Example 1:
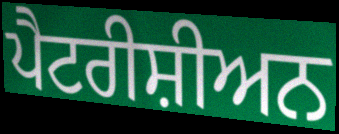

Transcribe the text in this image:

ਪੈਟਰੀਸ਼ੀਅਨ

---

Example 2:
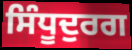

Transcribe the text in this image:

ਸਿੰਧੂਦੁਰਗ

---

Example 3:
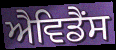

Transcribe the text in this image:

ਐਵਿਡੈਂਸ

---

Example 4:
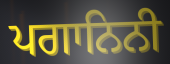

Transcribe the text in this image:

ਪਗਾਨਿਨੀ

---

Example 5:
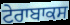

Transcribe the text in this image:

ਟੇਰਾਬਾਕਸ